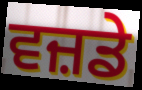
ਵਜ਼ਡੇ